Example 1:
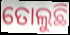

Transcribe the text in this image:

ତୋଲୁଛି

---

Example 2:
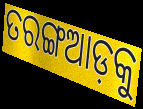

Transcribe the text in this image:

ତରଙ୍ଗଆଡ଼କୁ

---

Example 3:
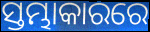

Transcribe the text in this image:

ସ୍ତମ୍ଭାକାରରେ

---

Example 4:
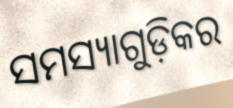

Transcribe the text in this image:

ସମସ୍ୟାଗୁଡ଼ିକର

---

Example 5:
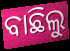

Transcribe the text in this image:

ବାଛିଲୁ